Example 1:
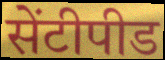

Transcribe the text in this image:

सेंटीपीड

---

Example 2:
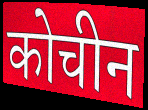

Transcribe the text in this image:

कोचीन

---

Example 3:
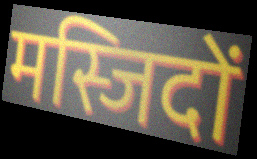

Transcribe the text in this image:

मस्‍जिदों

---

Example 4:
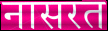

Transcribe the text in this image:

नासरत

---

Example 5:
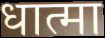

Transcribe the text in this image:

धात्मा